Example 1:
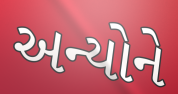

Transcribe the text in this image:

અન્યોને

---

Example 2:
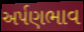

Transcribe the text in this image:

અર્પણભાવ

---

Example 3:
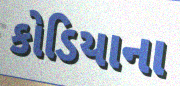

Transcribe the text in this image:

કોડિયાના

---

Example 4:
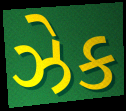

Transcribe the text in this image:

ઝેક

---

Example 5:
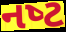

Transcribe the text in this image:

નષ્‍ટ